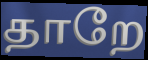
தாறே